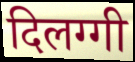
दिलग्गी